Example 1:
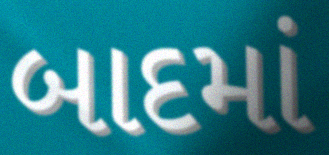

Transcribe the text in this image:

બાદમાં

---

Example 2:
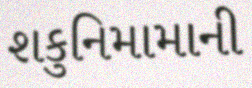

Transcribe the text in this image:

શકુનિમામાની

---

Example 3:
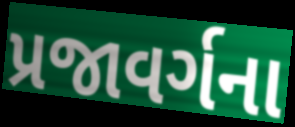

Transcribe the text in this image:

પ્રજાવર્ગના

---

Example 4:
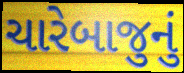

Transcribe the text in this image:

ચારેબાજુનું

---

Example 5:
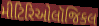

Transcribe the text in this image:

મીટિરિઓલૉજિકલ